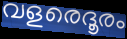
വളരെദൂരം